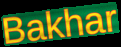
Bakhar